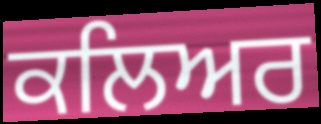
ਕਲਿਅਰ